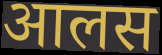
आलस